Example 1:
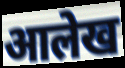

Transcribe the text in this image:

आलेख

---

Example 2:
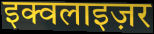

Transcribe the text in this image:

इक्वलाइज़र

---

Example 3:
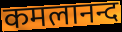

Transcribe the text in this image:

कमलानन्द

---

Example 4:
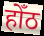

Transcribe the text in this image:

होँठ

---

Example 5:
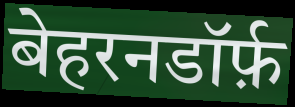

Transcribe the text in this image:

बेहरनडॉर्फ़